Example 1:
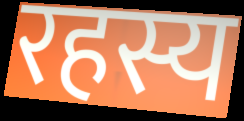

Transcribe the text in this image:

रहस्य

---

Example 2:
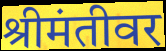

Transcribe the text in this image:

श्रीमंतीवर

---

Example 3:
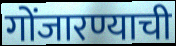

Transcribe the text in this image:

गोंजारण्याची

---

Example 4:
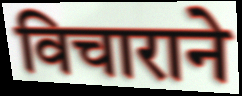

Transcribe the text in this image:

विचाराने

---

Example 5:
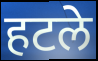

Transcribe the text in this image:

हटले